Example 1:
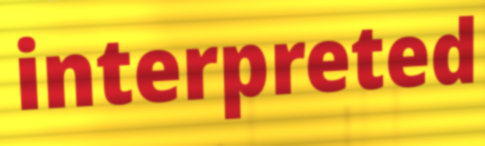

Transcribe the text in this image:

interpreted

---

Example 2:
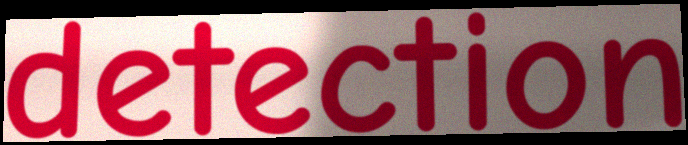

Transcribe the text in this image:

detection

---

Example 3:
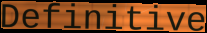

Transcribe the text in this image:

Definitive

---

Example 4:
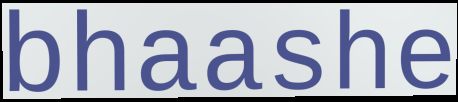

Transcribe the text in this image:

bhaashe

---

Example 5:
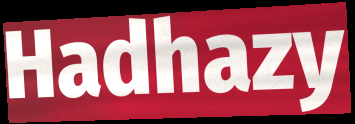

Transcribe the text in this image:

Hadhazy